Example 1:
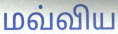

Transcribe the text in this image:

மவ்விய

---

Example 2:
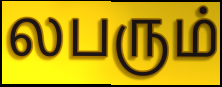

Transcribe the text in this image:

லபரும்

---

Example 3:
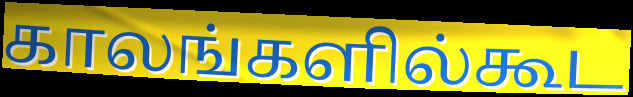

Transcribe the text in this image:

காலங்களில்கூட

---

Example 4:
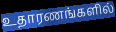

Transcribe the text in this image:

உதாரணங்களில்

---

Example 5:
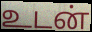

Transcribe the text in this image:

உடன்